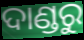
ଦାଣ୍ଡରୁ